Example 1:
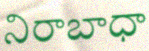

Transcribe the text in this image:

నిరాబాధా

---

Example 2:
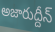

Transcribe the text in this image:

అజారుద్దీన్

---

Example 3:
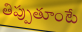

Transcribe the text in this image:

తిప్పుతూంటే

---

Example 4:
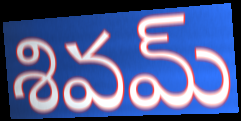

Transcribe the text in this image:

శివమ్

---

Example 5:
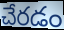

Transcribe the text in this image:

చేరడం